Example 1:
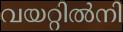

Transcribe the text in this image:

വയറ്റിൽനി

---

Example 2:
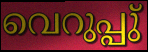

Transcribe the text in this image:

വെറുപ്പു്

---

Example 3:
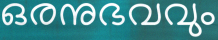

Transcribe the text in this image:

ഒരനുഭവവും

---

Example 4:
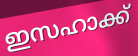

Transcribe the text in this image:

ഇസഹാക്ക്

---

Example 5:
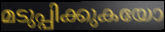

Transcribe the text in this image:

മടുപ്പിക്കുകയോ